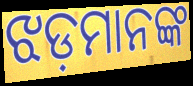
ଝଡ଼ମାନଙ୍କ